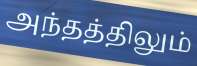
அந்தத்திலும்